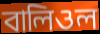
বালিওল